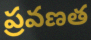
ప్రవణత